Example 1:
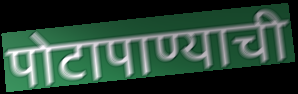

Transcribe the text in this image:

पोटापाण्याची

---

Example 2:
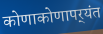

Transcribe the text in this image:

कोणाकोणापर्यंत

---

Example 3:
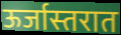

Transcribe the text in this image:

ऊर्जास्तरात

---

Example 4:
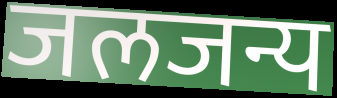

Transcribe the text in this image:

जलजन्य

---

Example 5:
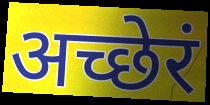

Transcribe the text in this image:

अच्छेरं